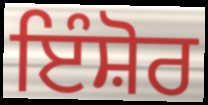
ਇੰਸ਼ੋਰ